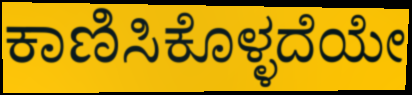
ಕಾಣಿಸಿಕೊಳ್ಳದೆಯೇ